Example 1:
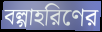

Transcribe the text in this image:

বল্গাহরিণের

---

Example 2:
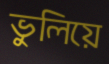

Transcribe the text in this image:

ভুলিয়ে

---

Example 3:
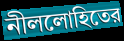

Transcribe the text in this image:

নীললোহিতের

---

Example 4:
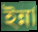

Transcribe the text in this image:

ইন্না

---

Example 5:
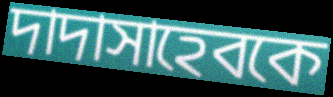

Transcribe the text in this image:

দাদাসাহেবকে